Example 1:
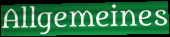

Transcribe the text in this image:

Allgemeines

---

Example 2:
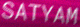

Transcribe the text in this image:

SATYAM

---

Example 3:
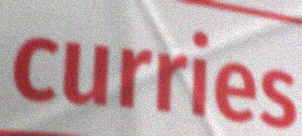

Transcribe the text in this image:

curries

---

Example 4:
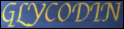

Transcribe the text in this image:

GLYCODIN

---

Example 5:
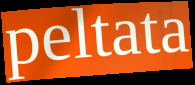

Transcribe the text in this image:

peltata